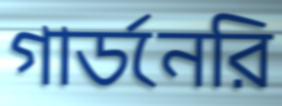
গার্ডনেরি